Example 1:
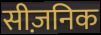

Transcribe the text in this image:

सीज़निक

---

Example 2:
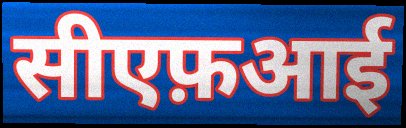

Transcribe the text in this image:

सीएफ़आई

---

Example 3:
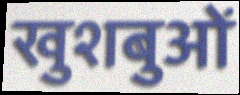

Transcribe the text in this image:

खुशबुओं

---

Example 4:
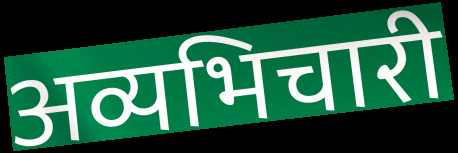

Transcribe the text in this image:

अव्यभिचारी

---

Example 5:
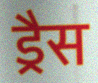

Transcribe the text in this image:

ड्रैस